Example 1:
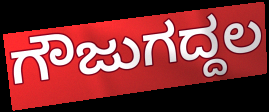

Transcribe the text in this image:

ಗೌಜುಗದ್ದಲ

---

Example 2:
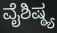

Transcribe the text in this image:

ವೈಶಿಷ್ಠ್ಯ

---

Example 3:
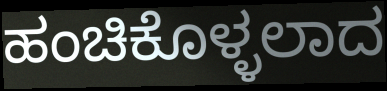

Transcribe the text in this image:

ಹಂಚಿಕೊಳ್ಳಲಾದ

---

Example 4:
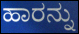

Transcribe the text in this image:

ಹಾರನ್ನು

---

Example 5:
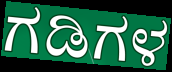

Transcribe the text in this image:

ಗಡಿಗಳ